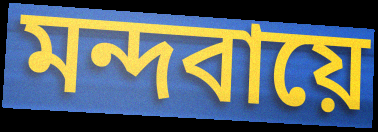
মন্দবায়ে